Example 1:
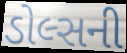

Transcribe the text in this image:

ડોલ્સની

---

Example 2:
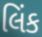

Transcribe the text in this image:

લિંક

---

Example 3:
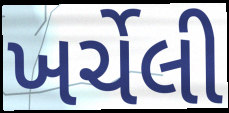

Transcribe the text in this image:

ખર્ચેલી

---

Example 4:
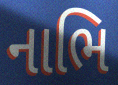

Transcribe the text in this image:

નાભિ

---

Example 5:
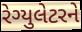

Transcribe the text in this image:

રેગ્યુલેટરને